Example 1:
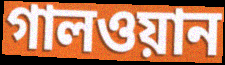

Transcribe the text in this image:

গালওয়ান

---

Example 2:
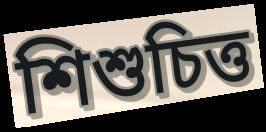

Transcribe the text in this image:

শিশুচিত্ত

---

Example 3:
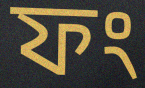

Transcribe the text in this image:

ফং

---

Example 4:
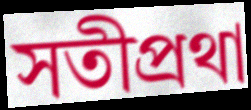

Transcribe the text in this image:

সতীপ্রথা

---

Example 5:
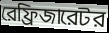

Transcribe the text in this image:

রেফ্রিজারেটর